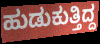
ಹುಡುಕುತ್ತಿದ್ದ